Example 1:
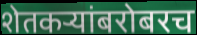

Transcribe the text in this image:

शेतकऱ्यांबरोबरच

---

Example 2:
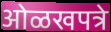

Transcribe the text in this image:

ओळखपत्रे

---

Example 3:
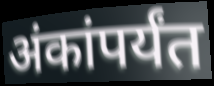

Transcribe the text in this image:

अंकांपर्यंत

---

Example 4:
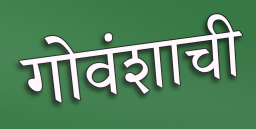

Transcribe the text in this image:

गोवंशाची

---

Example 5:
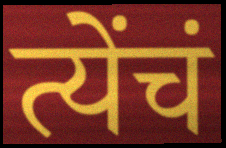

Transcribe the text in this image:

त्येंचं